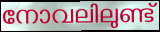
നോവലിലുണ്ട്